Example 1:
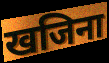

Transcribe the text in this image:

खजिना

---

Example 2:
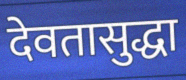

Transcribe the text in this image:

देवतासुद्धा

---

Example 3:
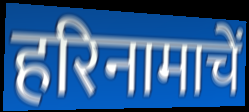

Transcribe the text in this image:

हरिनामाचें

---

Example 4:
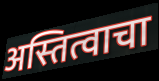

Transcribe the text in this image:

अस्तित्वाचा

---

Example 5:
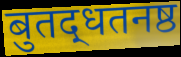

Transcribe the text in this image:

बुतद्धतनष्ठ